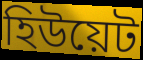
হিউয়েট